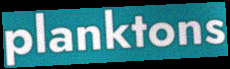
planktons